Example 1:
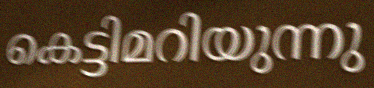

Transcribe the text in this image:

കെട്ടിമറിയുന്നു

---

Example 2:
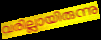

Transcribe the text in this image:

വരില്ലായിരുന്നു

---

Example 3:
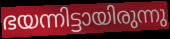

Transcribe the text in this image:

ഭയന്നിട്ടായിരുന്നു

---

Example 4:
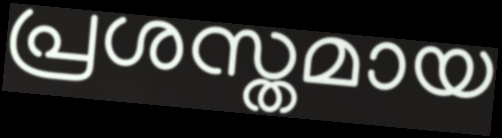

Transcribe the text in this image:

പ്രശസ്തമായ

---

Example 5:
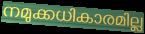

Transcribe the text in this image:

നമുക്കധികാരമില്ല